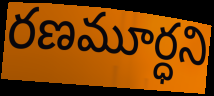
రణమూర్ధని